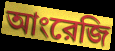
আংরেজি